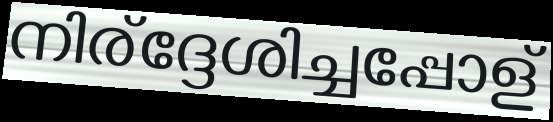
നിര്ദ്ദേശിച്ചപ്പോള്